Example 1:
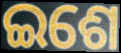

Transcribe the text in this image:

ଇଶେ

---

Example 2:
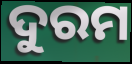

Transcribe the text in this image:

ଦୁରମ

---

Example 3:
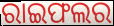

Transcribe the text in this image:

ରାଇଫଲର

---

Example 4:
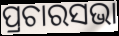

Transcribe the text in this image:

ପ୍ରଚାରସଭା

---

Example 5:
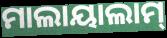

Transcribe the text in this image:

ମାଲାୟାଲାମ୍